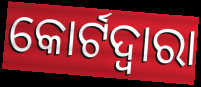
କୋର୍ଟଦ୍ୱାରା